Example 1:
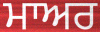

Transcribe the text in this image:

ਮਾਅਰ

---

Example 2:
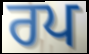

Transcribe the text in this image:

ਰਪ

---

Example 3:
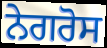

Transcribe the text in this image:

ਨੇਗਰੋਸ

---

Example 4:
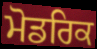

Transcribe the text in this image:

ਮੋਡਰਿਕ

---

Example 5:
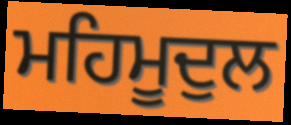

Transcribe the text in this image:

ਮਹਿਮੂਦੁਲ